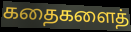
கதைகளைத்